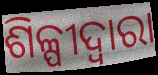
ଶିଳ୍ପୀଦ୍ୱାରା